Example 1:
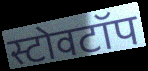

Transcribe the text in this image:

स्टोवटॉप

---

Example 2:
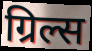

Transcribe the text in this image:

ग्रिल्स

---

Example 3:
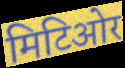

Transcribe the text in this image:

मिटिओर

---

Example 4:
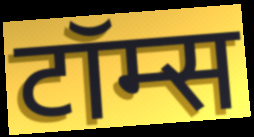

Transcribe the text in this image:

टॉम्स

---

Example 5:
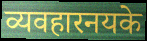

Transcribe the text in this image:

व्यवहारनयके